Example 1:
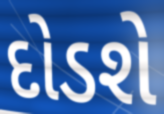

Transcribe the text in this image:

દોડશે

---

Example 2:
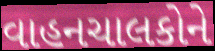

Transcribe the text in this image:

વાહનચાલકોને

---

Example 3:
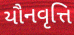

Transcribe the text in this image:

યૌનવૃત્તિ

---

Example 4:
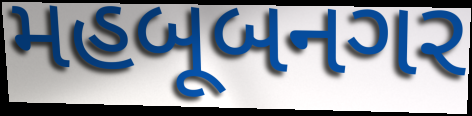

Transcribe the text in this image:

મહબૂબનગર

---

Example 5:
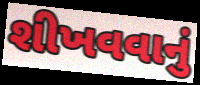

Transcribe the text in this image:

શીખવવાનું